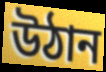
উঠান